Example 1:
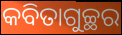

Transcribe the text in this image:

କବିତାଗୁଚ୍ଛର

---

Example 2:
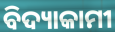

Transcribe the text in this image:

ବିଦ୍ୟାକାମୀ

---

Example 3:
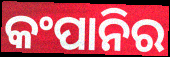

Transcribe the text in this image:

କଂପାନିର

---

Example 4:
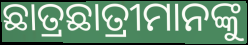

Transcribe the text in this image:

ଛାତ୍ରଛାତ୍ରୀମାନଙ୍କୁ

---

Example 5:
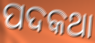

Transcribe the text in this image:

ପଦକଥା